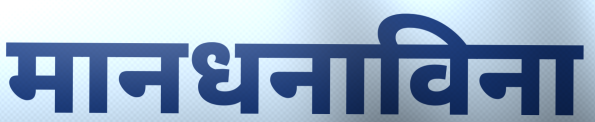
मानधनाविना